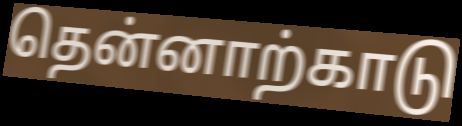
தென்னாற்காடு